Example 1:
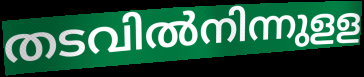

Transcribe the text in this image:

തടവിൽനിന്നുളള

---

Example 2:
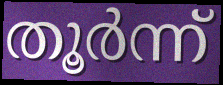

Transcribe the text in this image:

തൂർന്ന്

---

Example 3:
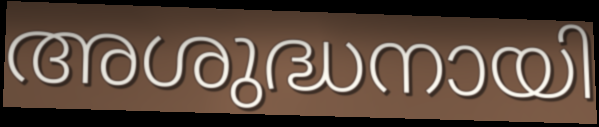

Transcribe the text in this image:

അശുദ്ധനായി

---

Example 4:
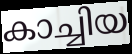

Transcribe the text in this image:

കാച്ചിയ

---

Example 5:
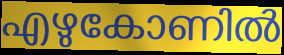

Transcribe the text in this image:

എഴുകോണിൽ